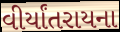
વીર્યાંતરાયના